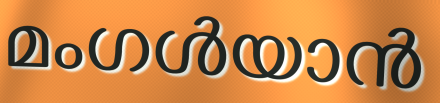
മംഗൾയാൻ